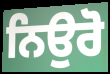
ਨਿਉਰੋ